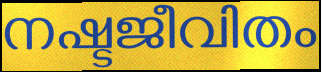
നഷ്ടജീവിതം